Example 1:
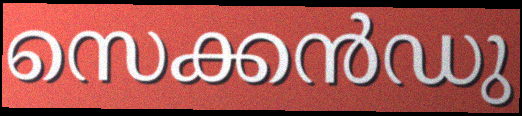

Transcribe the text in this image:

സെക്കൻഡു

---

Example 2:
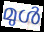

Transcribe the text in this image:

മുൾ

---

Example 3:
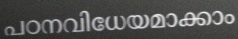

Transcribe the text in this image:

പഠനവിധേയമാക്കാം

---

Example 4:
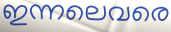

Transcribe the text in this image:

ഇന്നലെവരെ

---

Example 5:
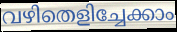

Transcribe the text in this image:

വഴിതെളിച്ചേക്കാം